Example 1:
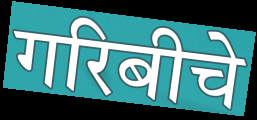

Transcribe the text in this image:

गरिबीचे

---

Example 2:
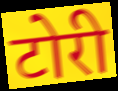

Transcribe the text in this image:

टोरी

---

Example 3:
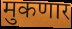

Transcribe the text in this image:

मुकणार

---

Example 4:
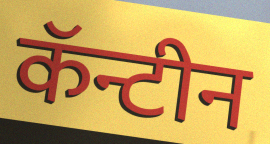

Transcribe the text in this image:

कॅन्टीन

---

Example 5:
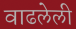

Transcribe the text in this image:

वाढलेली